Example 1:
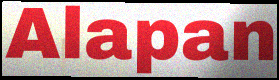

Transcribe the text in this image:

Alapan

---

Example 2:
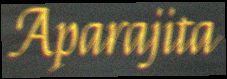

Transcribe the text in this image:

Aparajita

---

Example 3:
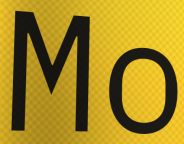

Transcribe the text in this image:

Mo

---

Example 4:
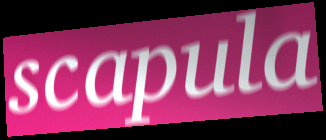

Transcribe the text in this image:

scapula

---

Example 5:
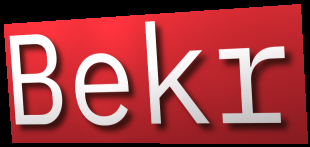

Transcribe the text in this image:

Bekr